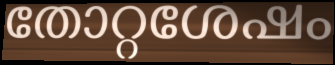
തോറ്റശേഷം